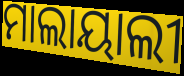
ମାଲାୟାଲୀ